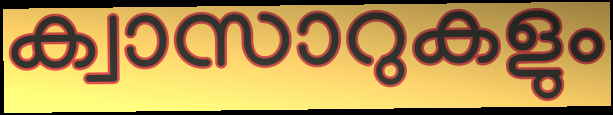
ക്വാസാറുകളും